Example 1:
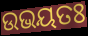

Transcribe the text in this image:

ଉଭୟତଃ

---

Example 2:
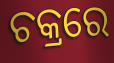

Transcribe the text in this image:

ଚକ୍ରରେ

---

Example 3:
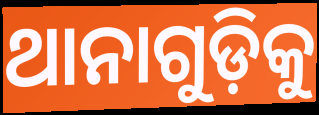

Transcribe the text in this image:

ଥାନାଗୁଡ଼ିକୁ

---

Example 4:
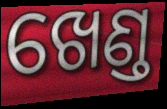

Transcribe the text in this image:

ଖେଣ୍ଡ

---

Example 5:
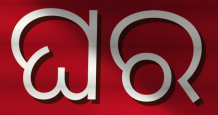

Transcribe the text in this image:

ଘର